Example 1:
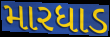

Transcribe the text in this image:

મારધાડ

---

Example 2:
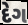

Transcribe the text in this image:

દેગ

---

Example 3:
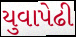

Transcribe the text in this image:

યુવાપેઢી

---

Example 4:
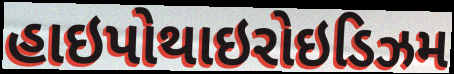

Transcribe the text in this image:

હાઇપોથાઇરોઇડિઝમ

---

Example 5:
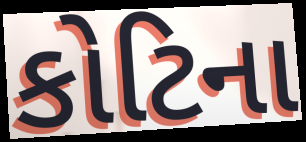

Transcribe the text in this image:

કોટિના